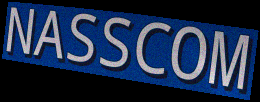
NASSCOM